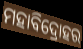
ମହାବିଦ୍ରୋହର